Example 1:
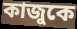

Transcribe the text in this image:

কাজুকে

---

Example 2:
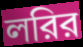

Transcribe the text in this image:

লরির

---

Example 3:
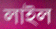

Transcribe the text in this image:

লাইল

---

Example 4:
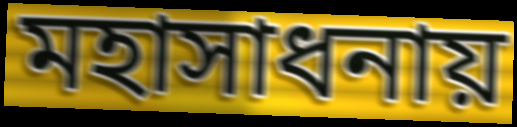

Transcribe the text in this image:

মহাসাধনায়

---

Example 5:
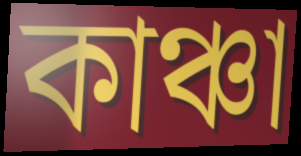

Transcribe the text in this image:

কাঞ্চা